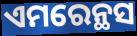
ଏମରେନ୍ଥସ